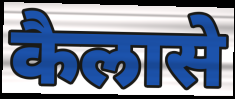
कैलासे